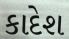
કાદેશ